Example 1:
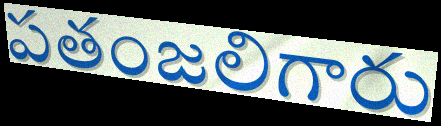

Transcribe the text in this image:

పతంజలిగారు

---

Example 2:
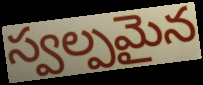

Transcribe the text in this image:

స్వల్పమైన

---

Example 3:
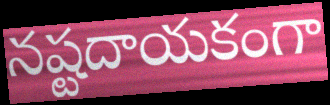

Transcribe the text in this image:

నష్టదాయకంగా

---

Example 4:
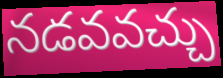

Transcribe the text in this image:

నడవవచ్చు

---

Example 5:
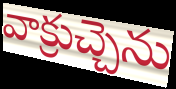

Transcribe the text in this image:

వాక్రుచ్చెను